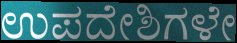
ಉಪದೇಶಿಗಳೇ